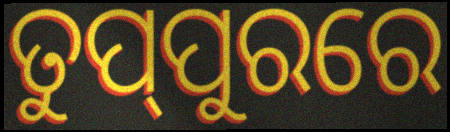
ତୁପ୍‌ପୁରରେ